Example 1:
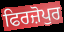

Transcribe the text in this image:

ਫਿਰਜ਼ੋਪੁਰ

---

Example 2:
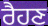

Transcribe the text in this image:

ਰੈਹਣ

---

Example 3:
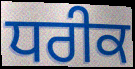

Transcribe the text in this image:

ਧਰੀਕ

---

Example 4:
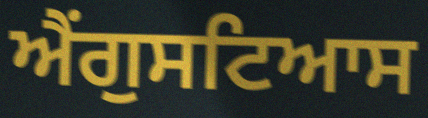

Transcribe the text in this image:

ਐਂਗੁਸਟਿਆਸ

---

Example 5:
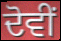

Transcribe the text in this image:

ਦੋਵੀਂ